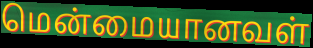
மென்மையானவள்